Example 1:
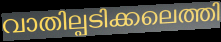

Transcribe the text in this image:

വാതില്പടിക്കലെത്തി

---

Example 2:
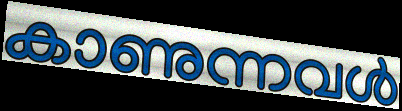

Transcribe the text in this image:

കാണുന്നവൾ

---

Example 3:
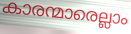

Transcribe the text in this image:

കാരന്മാരെല്ലാം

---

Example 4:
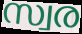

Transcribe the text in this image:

സ്വര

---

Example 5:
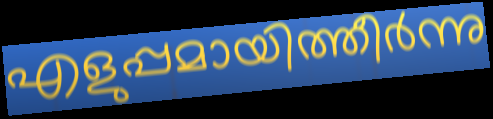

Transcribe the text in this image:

എളുപ്പമായിത്തീർന്നു